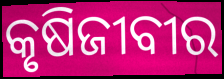
କୃଷିଜୀବୀର